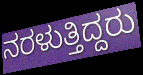
ನರಳುತ್ತಿದ್ದರು